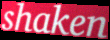
shaken